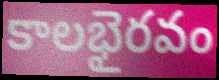
కాలభైరవం